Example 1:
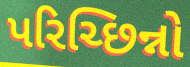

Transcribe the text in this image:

પરિચ્છિન્નો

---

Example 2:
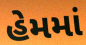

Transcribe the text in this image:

હેમમાં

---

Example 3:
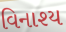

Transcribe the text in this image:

વિનાશ્ય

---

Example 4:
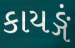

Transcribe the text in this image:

કાયઙ્ગં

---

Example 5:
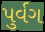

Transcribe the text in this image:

પુર્વગ